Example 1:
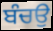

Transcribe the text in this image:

ਬੰਚਉ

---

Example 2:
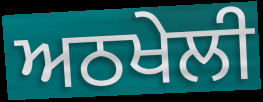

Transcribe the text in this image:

ਅਠਖੇਲੀ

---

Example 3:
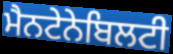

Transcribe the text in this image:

ਮੈਨਟੇਨੇਬਿਲਟੀ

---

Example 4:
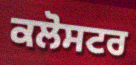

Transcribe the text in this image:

ਕਲੋਸਟਰ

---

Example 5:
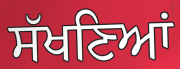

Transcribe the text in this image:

ਸੱਖਣਿਆਂ